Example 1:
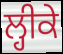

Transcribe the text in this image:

ਲ੍ਹੀਕੇ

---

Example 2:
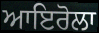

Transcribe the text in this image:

ਆਇਰੋਲਾ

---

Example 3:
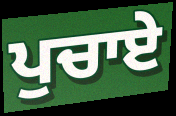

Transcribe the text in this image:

ਪੁਚਾਏ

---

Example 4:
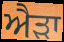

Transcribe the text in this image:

ਐੜਾ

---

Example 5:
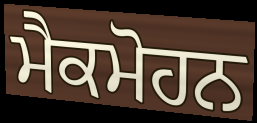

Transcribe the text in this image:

ਮੈਕਮੋਹਨ